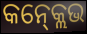
କନ୍କ୍ଲେଭ